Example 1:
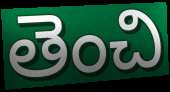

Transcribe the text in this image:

తెంచి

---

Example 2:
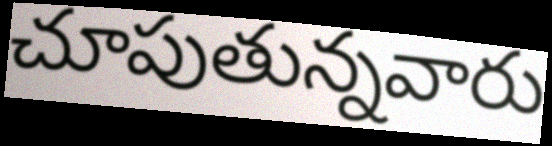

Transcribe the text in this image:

చూపుతున్నవారు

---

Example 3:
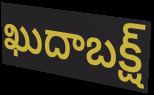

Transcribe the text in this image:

ఖుదాబక్ష్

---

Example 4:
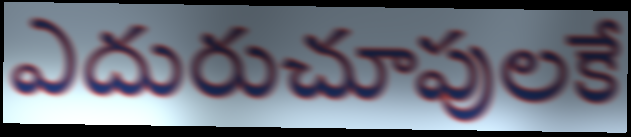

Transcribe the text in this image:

ఎదురుచూపులకే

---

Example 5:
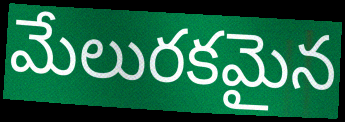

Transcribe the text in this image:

మేలురకమైన